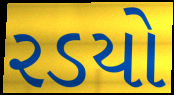
રડયો